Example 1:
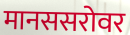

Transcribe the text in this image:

मानससरोवर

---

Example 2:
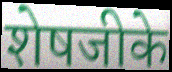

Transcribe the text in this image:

शेषजीके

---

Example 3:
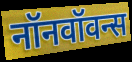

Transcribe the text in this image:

नॉनवॉवन्स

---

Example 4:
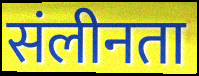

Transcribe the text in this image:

संलीनता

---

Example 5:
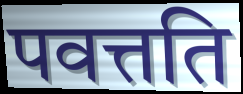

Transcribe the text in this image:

पवत्तति